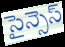
సైన్సెస్